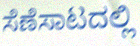
ಸೆಣೆಸಾಟದಲ್ಲಿ